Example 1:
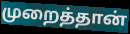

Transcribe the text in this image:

முறைத்தான்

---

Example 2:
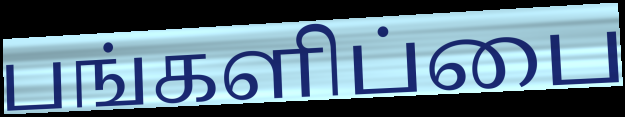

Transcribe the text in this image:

பங்களிப்பை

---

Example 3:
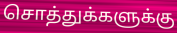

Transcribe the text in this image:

சொத்துக்களுக்கு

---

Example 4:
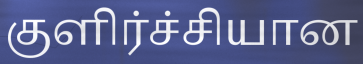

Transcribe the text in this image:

குளிர்ச்சியான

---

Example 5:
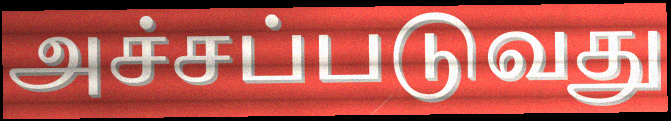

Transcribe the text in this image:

அச்சப்படுவது